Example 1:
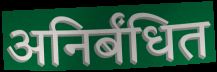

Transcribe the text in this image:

अनिर्बंधित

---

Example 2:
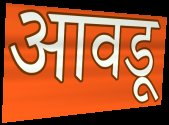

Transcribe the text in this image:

आवडू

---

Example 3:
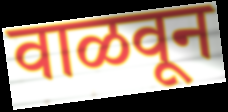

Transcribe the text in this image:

वाळवून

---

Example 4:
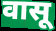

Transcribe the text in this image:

वासू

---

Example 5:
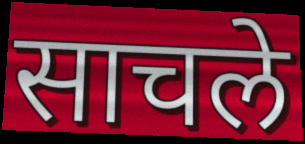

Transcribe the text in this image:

साचले